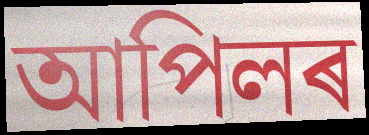
আপিলৰ